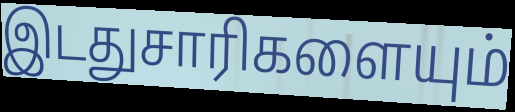
இடதுசாரிகளையும்